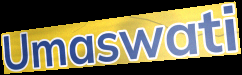
Umaswati